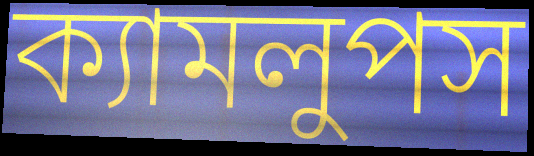
ক্যামলুপস